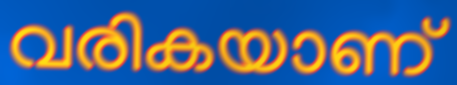
വരികയാണ്